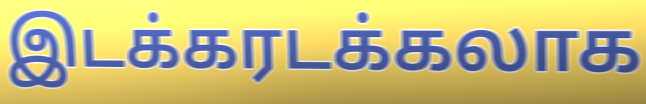
இடக்கரடக்கலாக